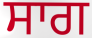
ਸਾਗ